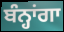
ਬੰਨ੍ਹਾਂਗਾ